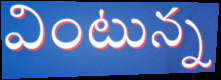
వింటున్న